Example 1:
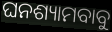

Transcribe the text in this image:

ଘନଶ୍ୟାମବାବୁ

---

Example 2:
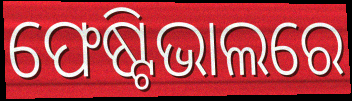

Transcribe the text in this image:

ଫେଷ୍ଟିଭାଲରେ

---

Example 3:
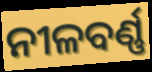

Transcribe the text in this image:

ନୀଳବର୍ଣ୍ଣ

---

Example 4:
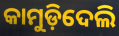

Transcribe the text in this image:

କାମୁଡ଼ିଦେଲି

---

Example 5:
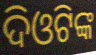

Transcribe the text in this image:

ଦିଓଟିଙ୍କ